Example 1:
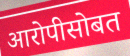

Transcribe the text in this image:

आरोपीसोबत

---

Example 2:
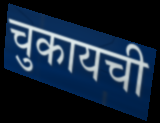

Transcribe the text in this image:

चुकायची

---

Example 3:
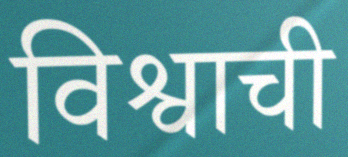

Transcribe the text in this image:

विश्वाची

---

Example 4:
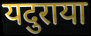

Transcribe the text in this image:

यदुराया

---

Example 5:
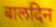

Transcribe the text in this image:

बालदिन